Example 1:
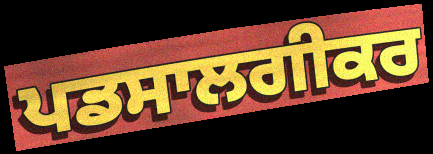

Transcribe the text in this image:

ਪਡਸਾਲਗੀਕਰ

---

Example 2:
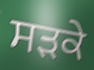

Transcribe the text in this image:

ਸਡ਼ਕੇ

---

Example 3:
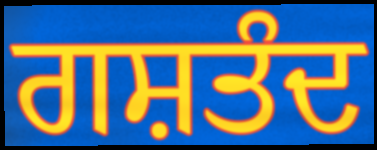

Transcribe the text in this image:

ਗਸ਼ਤੰਦ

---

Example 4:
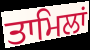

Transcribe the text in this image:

ਤਾਮਿਲਾਂ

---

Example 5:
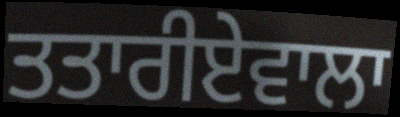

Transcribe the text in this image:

ਤਤਾਰੀਏਵਾਲਾ